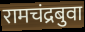
रामचंद्रबुवा